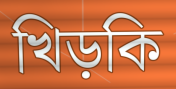
খিড়কি